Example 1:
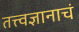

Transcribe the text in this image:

तत्त्वज्ञानाचं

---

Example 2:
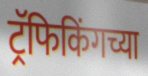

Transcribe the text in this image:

ट्रॅफिकिंगच्या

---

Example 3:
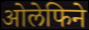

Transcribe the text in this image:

ओलेफिने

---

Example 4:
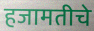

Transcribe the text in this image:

हजामतीचे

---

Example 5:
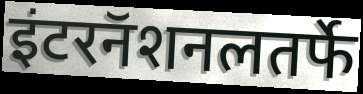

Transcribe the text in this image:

इंटरनॅशनलतर्फे